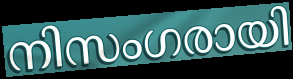
നിസംഗരായി